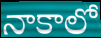
నాకాలో